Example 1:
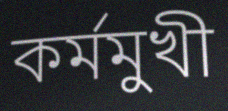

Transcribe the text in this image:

কর্মমুখী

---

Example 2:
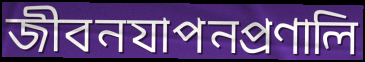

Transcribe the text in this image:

জীবনযাপনপ্রণালি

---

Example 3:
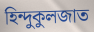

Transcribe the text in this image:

হিন্দুকুলজাত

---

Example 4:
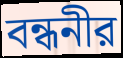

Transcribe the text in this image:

বন্ধনীর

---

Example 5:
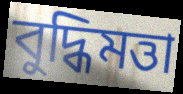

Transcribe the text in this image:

বুদ্ধিমত্তা